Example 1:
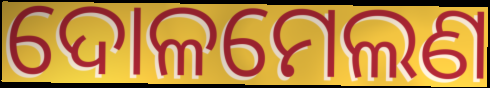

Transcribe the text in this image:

ଦୋଳମେଲଣ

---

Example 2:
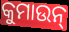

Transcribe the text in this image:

କୁମାଉନ୍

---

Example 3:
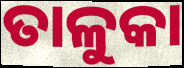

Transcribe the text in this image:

ତାଳୁକା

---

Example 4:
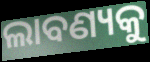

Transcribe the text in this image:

ଲାବଣ୍ୟକୁ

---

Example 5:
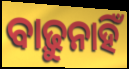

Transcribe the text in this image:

ବାଢ଼ୁନାହିଁ